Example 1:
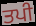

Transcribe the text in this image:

ਤਪੀ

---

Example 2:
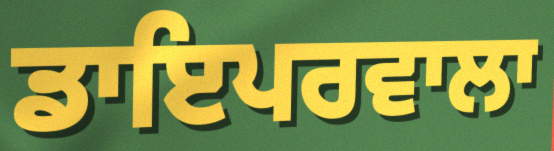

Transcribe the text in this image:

ਡਾਇਪਰਵਾਲਾ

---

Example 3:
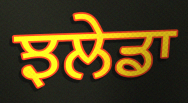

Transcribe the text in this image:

ਝਲੇਡਾ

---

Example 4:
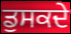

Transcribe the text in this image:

ਡੁਸਕਦੇ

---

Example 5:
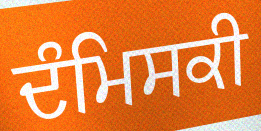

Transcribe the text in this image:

ਦੰਮਿਸਕੀ